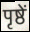
पृष्ठें